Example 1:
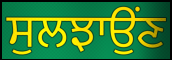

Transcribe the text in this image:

ਸੁਲਝਾਉਂਣ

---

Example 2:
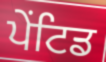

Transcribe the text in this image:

ਪੇਂਟਿਡ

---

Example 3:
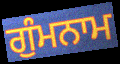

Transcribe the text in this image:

ਗੁੰਮਨਾਮ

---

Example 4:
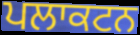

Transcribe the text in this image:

ਪਲਾਕਟਨ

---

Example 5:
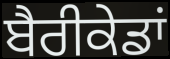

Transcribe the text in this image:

ਬੈਰੀਕੇਡਾਂ